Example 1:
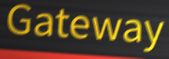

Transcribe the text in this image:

Gateway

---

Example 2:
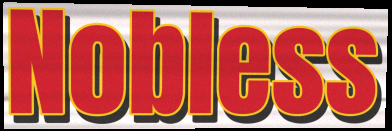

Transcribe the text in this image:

Nobless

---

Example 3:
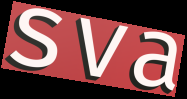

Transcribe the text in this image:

sva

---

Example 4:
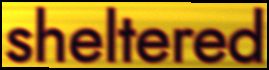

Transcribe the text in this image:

sheltered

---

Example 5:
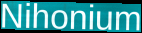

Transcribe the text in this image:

Nihonium